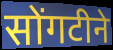
सोंगटीने